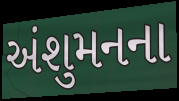
અંશુમનના